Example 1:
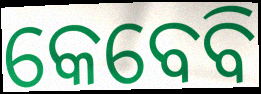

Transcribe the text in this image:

କେବେବି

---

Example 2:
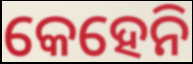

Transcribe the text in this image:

କେହେନି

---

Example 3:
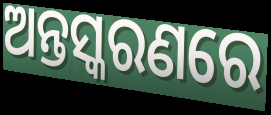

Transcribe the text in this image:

ଅନ୍ତସ୍କରଣରେ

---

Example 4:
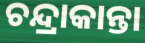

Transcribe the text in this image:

ଚନ୍ଦ୍ରାକାନ୍ତା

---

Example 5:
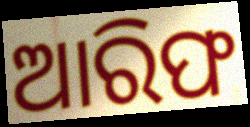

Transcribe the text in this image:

ଆରିଫ